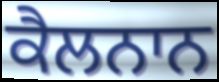
ਕੈਲਨਾਨ